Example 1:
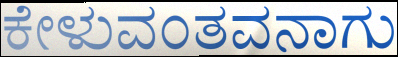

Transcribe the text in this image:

ಕೇಳುವಂತವನಾಗು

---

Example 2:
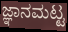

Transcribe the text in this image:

ಜ್ಞಾನಮಟ್ಟ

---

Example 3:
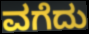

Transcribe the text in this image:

ವಗೆದು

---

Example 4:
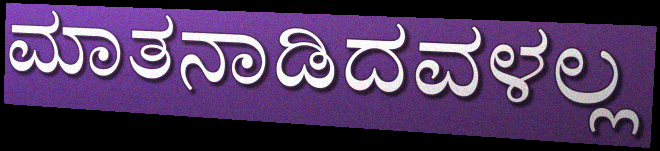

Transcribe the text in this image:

ಮಾತನಾಡಿದವಳಲ್ಲ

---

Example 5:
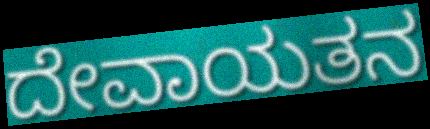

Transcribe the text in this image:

ದೇವಾಯತನ